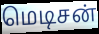
மெடிசன்